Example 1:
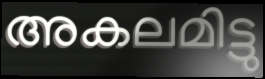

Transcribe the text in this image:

അകലമിട്ടു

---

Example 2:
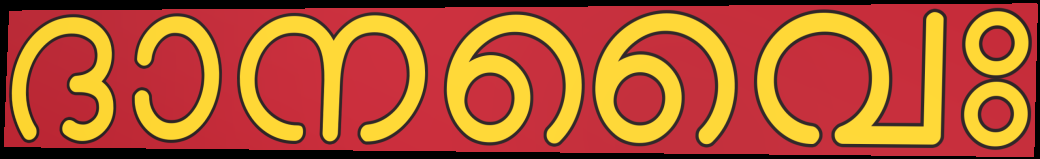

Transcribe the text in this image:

ദാനവൈഃ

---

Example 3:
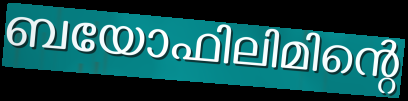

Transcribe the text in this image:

ബയോഫിലിമിന്റെ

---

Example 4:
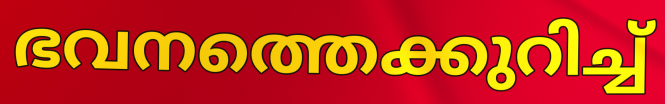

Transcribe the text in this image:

ഭവനത്തെക്കുറിച്ച്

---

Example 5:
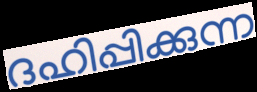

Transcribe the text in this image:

ദഹിപ്പിക്കുന്ന